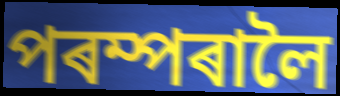
পৰম্পৰালৈ